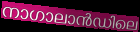
നാഗാലാൻഡിലെ